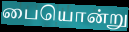
பையொன்று